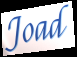
Joad